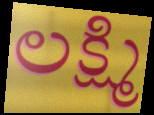
లక్ష్మి